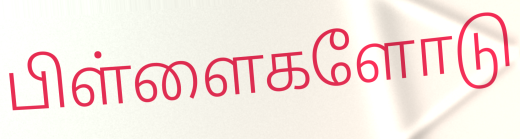
பிள்ளைகளோடு